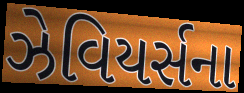
ઝેવિયર્સના